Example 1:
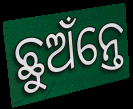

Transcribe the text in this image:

ଛୁଅଁନ୍ତେ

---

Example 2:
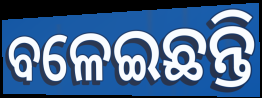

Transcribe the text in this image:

ବଳେଇଛନ୍ତି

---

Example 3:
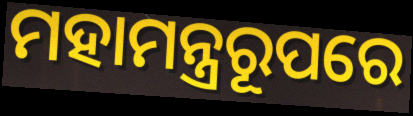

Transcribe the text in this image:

ମହାମନ୍ତ୍ରରୂପରେ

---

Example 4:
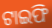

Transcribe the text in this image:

ଟାଇଫି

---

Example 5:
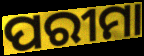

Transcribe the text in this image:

ପରୀମା